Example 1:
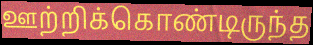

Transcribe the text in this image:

ஊற்றிக்கொண்டிருந்த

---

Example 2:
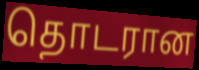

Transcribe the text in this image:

தொடரான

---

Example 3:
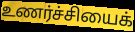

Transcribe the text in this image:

உணர்ச்சியைக்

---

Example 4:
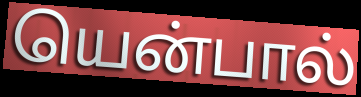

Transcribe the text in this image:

யென்பால்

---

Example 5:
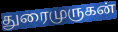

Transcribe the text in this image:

துரைமுருகன்